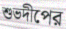
শুভদীপের